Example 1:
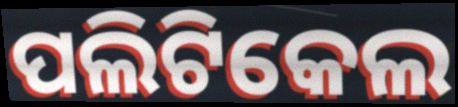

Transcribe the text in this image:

ପଲିଟିକେଲ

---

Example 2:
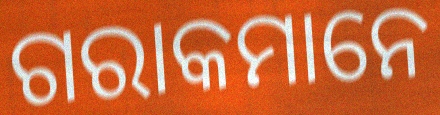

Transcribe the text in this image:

ଗରାକମାନେ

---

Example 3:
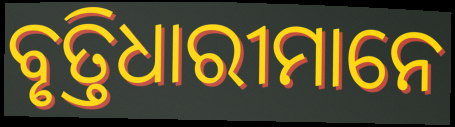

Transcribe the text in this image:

ବୃତ୍ତିଧାରୀମାନେ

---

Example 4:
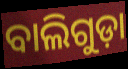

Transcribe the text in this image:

ବାଲିଗୁଡ଼ା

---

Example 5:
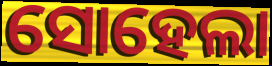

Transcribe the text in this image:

ସୋହେଲା